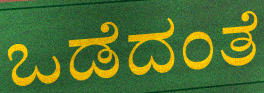
ಒಡೆದಂತೆ